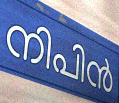
നിപിൻ